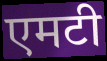
एमटी